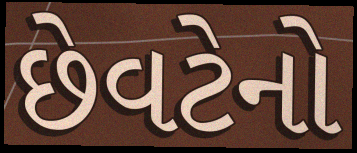
છેવટેનો